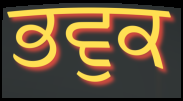
ਭਵੁਕ